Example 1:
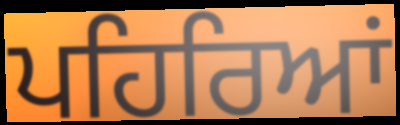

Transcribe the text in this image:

ਪਹਿਰਿਆਂ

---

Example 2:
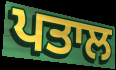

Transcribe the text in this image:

ਪਤਾਲ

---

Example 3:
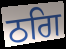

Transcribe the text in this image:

ਠਗਿ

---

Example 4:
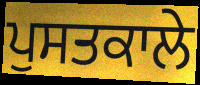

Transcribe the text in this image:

ਪੁਸਤਕਾਲੇ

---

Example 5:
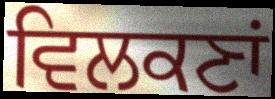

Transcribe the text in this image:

ਵਿਲਕਣਾਂ